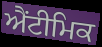
ਐਂਟੀਮਿਕ